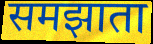
समझाता